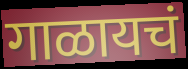
गाळायचं